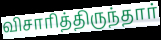
விசாரித்திருந்தார்